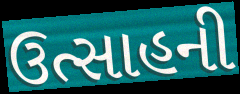
ઉત્સાહની